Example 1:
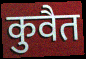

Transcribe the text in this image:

कुवैत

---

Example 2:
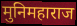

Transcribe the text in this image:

मुनिमहाराज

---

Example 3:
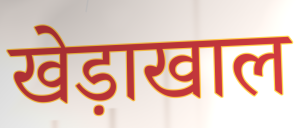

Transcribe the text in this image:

खेड़ाखाल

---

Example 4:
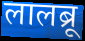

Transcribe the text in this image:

लालब्रू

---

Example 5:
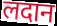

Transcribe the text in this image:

लदान